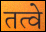
तत्वे